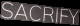
SACRIFY